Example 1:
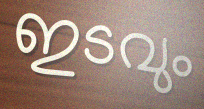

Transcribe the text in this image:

ഇടവും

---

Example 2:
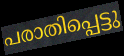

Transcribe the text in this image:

പരാതിപ്പെട്ടു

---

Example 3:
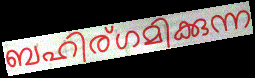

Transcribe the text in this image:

ബഹിര്ഗമിക്കുന്ന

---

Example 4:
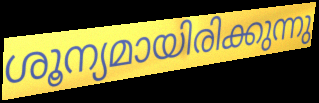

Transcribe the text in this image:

ശൂന്യമായിരിക്കുന്നു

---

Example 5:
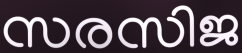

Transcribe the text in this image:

സരസിജ